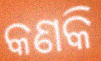
କଣକି